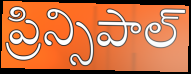
ప్రిన్సిపాల్